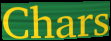
Chars